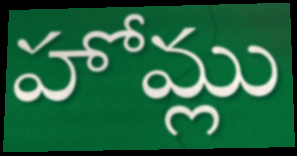
హోమ్లు